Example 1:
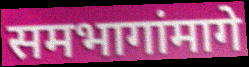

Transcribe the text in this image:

समभागांमागे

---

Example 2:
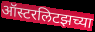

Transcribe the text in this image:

ऑस्टरलिटझच्या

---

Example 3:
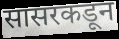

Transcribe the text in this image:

सासरकडून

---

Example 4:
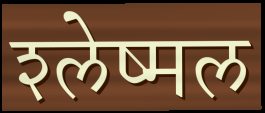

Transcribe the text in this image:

श्लेष्मल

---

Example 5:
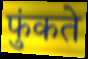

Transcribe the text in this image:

फुंकते